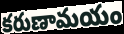
కరుణామయం